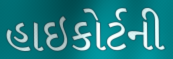
હાઇકોર્ટની